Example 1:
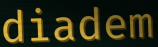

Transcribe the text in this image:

diadem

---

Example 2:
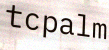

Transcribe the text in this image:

tcpalm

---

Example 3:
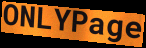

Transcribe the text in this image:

ONLYPage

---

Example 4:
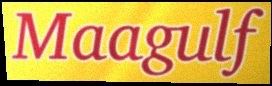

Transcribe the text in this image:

Maagulf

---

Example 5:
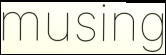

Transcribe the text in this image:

musing